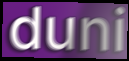
duni